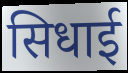
सिधाई